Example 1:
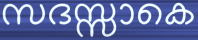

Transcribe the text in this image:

സദസ്സാകെ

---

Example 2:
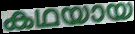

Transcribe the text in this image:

കഥയായ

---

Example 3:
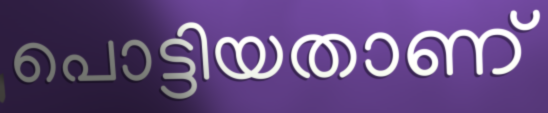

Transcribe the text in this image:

പൊട്ടിയതാണ്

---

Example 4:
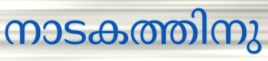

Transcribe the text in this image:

നാടകത്തിനു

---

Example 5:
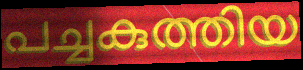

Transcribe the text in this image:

പച്ചകുത്തിയ